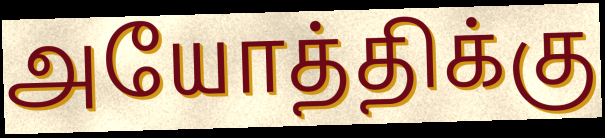
அயோத்திக்கு